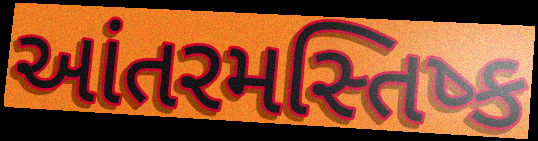
આંતરમસ્તિષ્ક